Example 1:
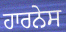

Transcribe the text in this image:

ਹਾਰਨੇਸ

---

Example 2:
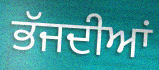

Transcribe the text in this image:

ਭੱਜਦੀਆਂ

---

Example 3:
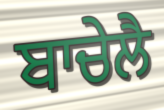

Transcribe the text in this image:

ਬਾਚੇਲੈ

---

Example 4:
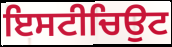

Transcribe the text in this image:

ਇਸਟੀਚਿਉਟ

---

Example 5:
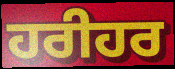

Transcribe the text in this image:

ਹਰੀਹਰ